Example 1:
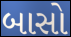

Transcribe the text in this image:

બાસો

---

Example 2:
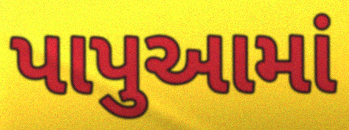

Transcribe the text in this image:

પાપુઆમાં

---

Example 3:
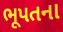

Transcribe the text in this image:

ભૂપતના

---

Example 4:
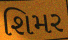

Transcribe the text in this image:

શિમર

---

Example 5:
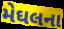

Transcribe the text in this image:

મેઘલના